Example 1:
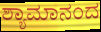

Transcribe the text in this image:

ಶ್ಯಾಮಾನಂದ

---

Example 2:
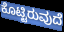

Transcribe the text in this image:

ಕೊಟ್ಟಿರುವುದೆ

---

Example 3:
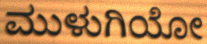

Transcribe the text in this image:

ಮುಳುಗಿಯೋ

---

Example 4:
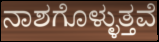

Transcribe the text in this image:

ನಾಶಗೊಳ್ಳುತ್ತವೆ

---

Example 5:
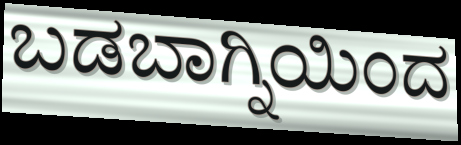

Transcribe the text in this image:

ಬಡಬಾಗ್ನಿಯಿಂದ